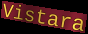
Vistara